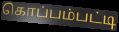
கொப்பம்பட்டி